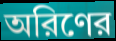
অরিণের